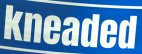
kneaded